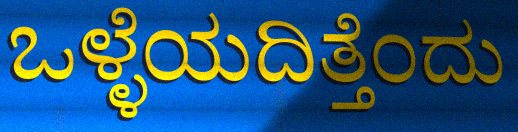
ಒಳ್ಳೆಯದಿತ್ತೆಂದು